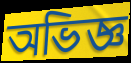
অভিজ্ঞ